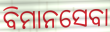
ବିମାନସେବା